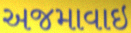
અજમાવાઇ